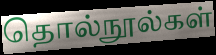
தொல்நூல்கள்